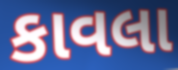
કાવલા